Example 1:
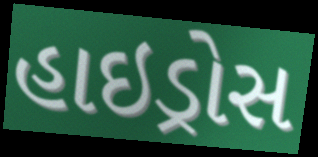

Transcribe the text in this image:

હાઇડ્રોસ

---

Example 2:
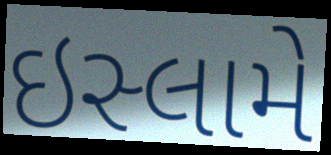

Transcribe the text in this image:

ઇસ્લામે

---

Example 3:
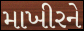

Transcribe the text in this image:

માખીરને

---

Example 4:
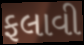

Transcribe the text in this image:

ફલાવી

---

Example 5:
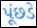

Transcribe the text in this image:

પૂંછડે